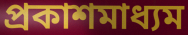
প্রকাশমাধ্যম